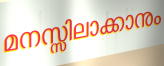
മനസ്സിലാക്കാനും